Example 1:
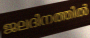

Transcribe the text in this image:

ജലദിനത്തിൽ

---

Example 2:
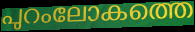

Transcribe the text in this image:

പുറംലോകത്തെ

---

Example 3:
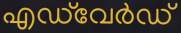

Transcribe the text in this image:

എഡ്‌വേർഡ്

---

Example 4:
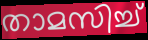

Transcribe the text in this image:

താമസിച്ച്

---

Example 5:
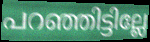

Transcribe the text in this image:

പറഞ്ഞിട്ടില്ലേ